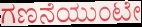
ಗಣನೆಯುಂಟೇ